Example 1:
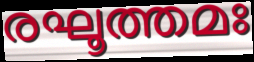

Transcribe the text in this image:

രഘൂത്തമഃ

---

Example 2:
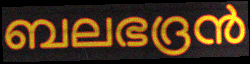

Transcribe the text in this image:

ബലഭദ്രൻ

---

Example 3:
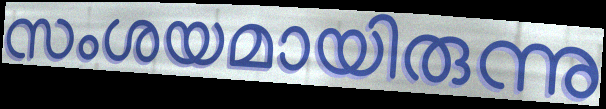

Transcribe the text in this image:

സംശയമായിരുന്നു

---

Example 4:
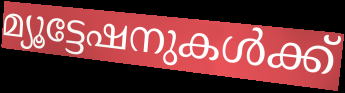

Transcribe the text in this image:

മ്യൂട്ടേഷനുകൾക്ക്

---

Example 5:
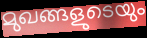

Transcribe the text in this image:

മുഖങ്ങളുടെയും